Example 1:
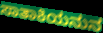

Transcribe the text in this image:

ಸಾತಾಕಿಯನುನ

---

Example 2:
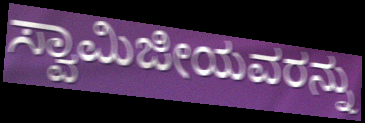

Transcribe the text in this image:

ಸ್ವಾಮಿಜೀಯವರನ್ನು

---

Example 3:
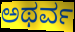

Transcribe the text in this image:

ಅಥರ್ವ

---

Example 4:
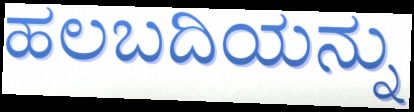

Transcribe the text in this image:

ಹಲಬದಿಯನ್ನು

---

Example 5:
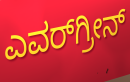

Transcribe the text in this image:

ಎವರ್‌ಗ್ರೀನ್